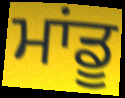
ਮਾਂਡੂ